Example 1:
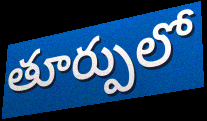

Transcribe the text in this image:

తూర్పులో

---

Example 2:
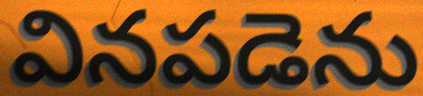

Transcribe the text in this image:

వినపడెను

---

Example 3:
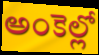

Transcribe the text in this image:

అంకెల్లో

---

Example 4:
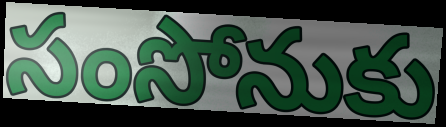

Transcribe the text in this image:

సంసోనుకు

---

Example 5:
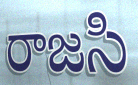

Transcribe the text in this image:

రాజసి